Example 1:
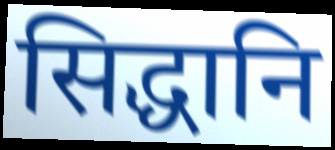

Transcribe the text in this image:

सिद्धानि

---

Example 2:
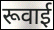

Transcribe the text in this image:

रूवाई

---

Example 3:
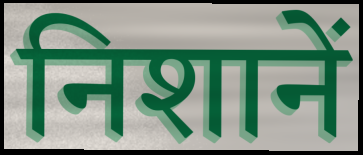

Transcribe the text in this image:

निशानें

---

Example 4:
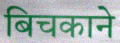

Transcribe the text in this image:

बिचकाने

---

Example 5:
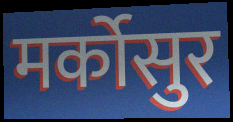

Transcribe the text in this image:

मर्कोसुर